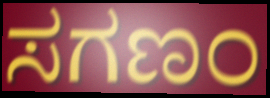
ಸಗಣಂ